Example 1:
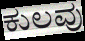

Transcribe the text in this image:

ಕುಲವು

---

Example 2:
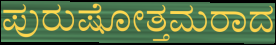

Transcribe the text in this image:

ಪುರುಷೋತ್ತಮರಾದ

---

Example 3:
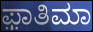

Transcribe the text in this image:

ಫ಼ಾತಿಮಾ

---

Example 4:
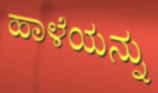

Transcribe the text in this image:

ಹಾಳೆಯನ್ನು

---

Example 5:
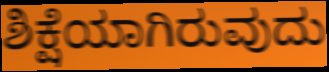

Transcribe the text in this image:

ಶಿಕ್ಷೆಯಾಗಿರುವುದು